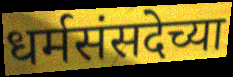
धर्मसंसदेच्या